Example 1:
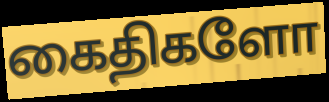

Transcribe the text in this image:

கைதிகளோ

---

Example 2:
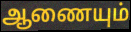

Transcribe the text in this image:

ஆணையும்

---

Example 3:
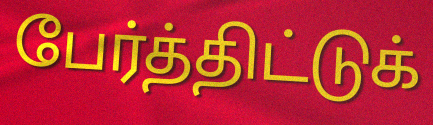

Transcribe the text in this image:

பேர்த்திட்டுக்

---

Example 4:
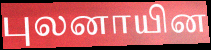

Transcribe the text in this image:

புலனாயின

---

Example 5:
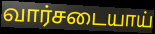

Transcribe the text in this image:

வார்சடையாய்